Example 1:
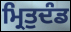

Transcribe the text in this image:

ਮ੍ਰਿਤੁਦੰਡ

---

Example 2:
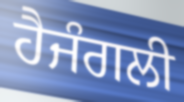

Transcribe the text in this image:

ਹੈਜੰਗਲੀ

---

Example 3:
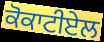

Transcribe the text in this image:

ਕੋਕਾਟੀਏਲ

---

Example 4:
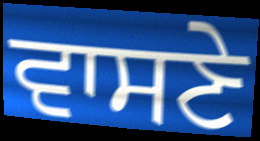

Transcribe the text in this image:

ਵਾਸਣੇ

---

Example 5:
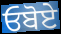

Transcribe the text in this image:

ਓਬੋਏ